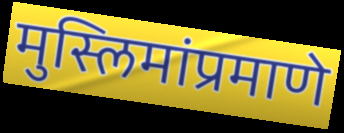
मुस्लिमांप्रमाणे